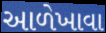
આળેખાવા